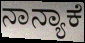
ನಾನ್ಯಾಕೆ